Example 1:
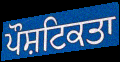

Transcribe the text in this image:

ਪੌਸ਼ਟਿਕਤਾ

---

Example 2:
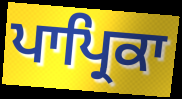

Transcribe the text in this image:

ਪਾਪ੍ਰਿਕਾ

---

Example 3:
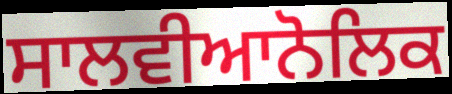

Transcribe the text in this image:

ਸਾਲਵੀਆਨੋਲਿਕ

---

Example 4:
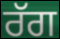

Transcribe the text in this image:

ਰੱਗ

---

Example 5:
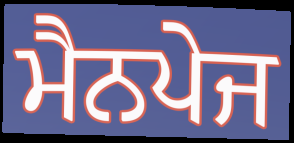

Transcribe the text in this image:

ਮੈਨਪੇਜ